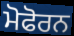
ਮੋਫੋਰਨ